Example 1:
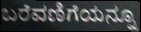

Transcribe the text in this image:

ಬರೆವಣಿಗೆಯನ್ನೂ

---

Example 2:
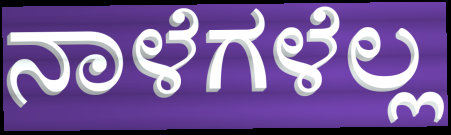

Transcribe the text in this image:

ನಾಳೆಗಳೆಲ್ಲ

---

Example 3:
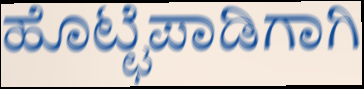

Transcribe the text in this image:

ಹೊಟ್ಟೆಪಾಡಿಗಾಗಿ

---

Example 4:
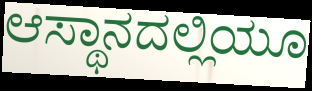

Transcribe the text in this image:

ಆಸ್ಥಾನದಲ್ಲಿಯೂ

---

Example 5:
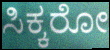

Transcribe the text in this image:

ಸಿಕ್ಕರೋ